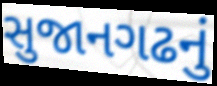
સુજાનગઢનું